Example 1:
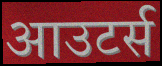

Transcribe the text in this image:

आउटर्स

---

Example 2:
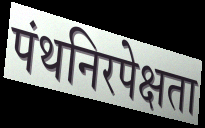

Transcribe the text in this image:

पंथनिरपेक्षता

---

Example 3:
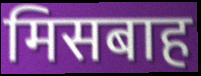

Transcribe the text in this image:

मिसबाह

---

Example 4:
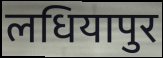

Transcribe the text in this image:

लधियापुर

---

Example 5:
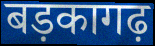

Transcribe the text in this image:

बड़कागढ़